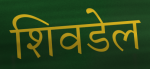
शिवडेल